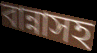
বান্নাসহ